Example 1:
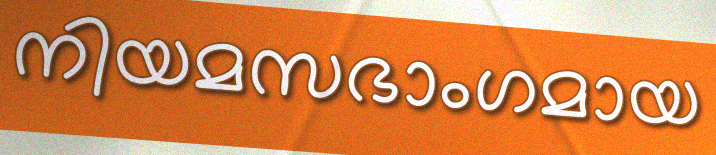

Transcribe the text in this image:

നിയമസഭാംഗമായ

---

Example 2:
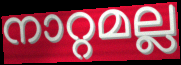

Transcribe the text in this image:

നാറ്റമല്ല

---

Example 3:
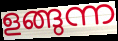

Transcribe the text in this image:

ളങ്ങുന്ന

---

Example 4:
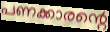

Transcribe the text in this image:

പണക്കാരന്റെ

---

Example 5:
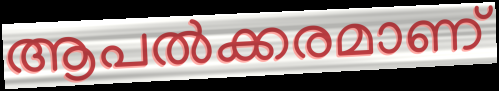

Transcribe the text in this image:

ആപൽക്കരമാണ്